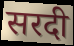
सरदी